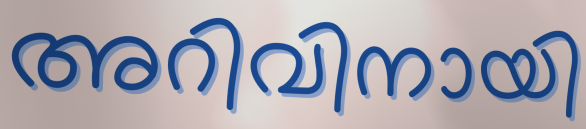
അറിവിനായി